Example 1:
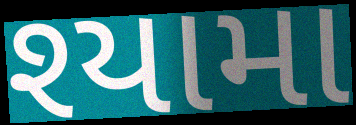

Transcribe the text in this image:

શ્યામા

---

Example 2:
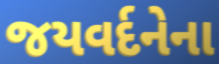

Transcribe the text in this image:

જયવર્દનેના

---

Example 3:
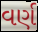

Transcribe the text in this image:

વર્ણ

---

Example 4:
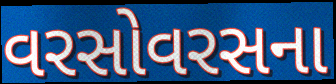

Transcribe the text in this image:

વરસોવરસના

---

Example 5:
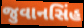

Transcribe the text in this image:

જુવાનસિંહ